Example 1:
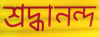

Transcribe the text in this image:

শ্ৰদ্ধানন্দ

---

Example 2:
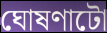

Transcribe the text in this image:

ঘোষণাটো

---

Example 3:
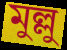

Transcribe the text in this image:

মুল্লু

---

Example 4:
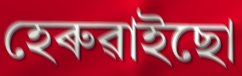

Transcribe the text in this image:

হেৰুৱাইছো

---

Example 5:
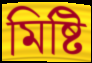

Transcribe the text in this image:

মিষ্টি